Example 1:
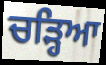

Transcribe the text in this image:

ਚਡ਼੍ਹਿਆ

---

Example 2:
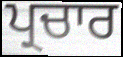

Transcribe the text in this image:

ਪ੍ਰਚਾਰ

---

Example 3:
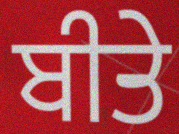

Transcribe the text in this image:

ਬੀਤੇ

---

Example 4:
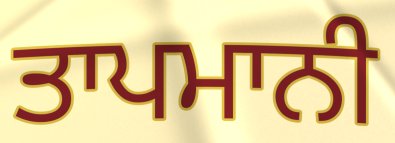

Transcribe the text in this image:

ਤਾਪਮਾਨੀ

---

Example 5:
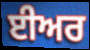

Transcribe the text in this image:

ਈਅਰ